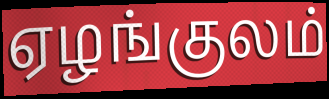
ஏழங்குலம்